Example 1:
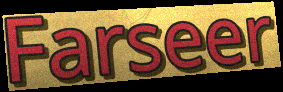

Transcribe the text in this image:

Farseer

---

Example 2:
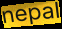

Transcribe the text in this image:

nepal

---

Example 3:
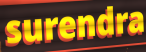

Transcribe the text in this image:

surendra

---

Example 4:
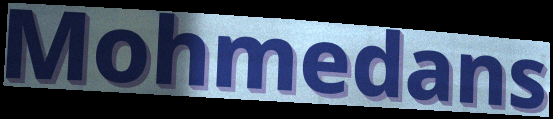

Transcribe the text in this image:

Mohmedans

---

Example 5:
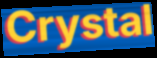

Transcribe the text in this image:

Crystal